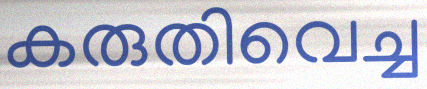
കരുതിവെച്ച